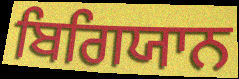
ਬਿਗਿਯਾਨ